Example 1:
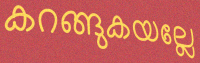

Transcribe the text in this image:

കറങ്ങുകയല്ലേ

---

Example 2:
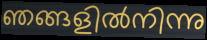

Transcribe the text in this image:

ഞങ്ങളിൽനിന്നു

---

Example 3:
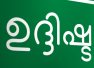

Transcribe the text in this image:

ഉദ്ദിഷ്ട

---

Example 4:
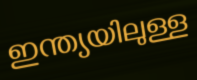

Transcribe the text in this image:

ഇന്ത്യയിലുള്ള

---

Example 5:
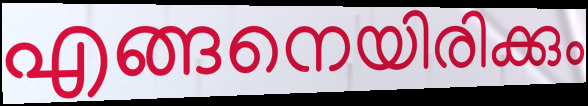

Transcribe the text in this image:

എങ്ങനെയിരിക്കും